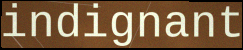
indignant